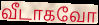
வீடாகவோ